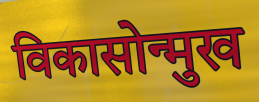
विकासोन्मुख